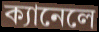
ক্যানেলে